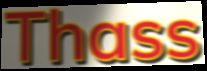
Thass